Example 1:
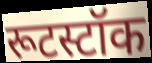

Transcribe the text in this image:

रूटस्टॉक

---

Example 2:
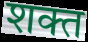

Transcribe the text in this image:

शक्त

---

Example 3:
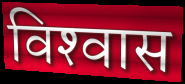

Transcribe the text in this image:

विश्‍वास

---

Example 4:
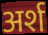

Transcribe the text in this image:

अर्श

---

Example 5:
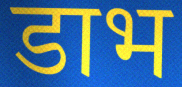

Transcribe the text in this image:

डाभ